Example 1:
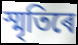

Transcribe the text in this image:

স্মৃতিৰে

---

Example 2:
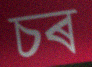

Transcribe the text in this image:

চৰ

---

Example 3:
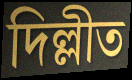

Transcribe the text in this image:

দিল্লীত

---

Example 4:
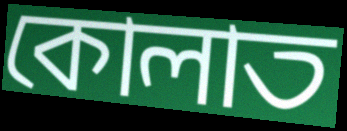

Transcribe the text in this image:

কোলাত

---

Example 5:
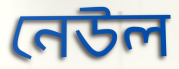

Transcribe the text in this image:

নেউল